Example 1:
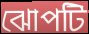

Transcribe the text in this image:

ঝোপটি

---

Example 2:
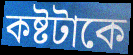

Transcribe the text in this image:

কষ্টটাকে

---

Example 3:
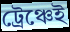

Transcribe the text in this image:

ট্রেঞ্চেই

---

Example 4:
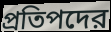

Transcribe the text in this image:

প্রতিপদের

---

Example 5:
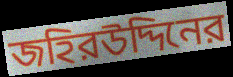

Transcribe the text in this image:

জহিরউদ্দিনের